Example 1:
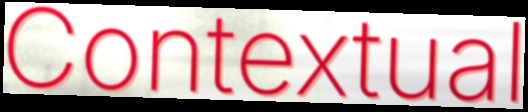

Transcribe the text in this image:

Contextual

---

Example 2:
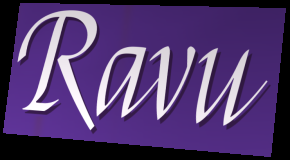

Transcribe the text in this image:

Ravu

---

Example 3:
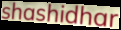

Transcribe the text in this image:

shashidhar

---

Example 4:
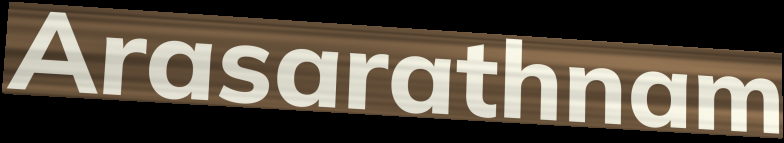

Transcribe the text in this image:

Arasarathnam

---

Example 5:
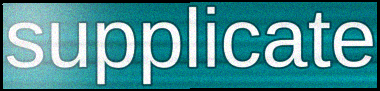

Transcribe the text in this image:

supplicate